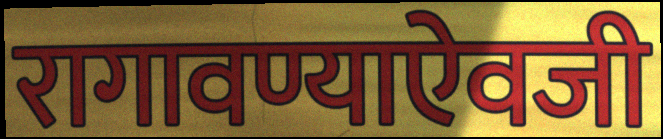
रागावण्याऐवजी